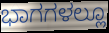
ಭಾಗಗಳಲ್ಲೂ